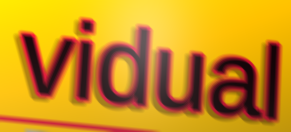
vidual